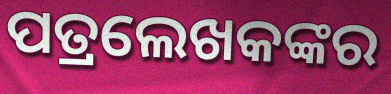
ପତ୍ରଲେଖକଙ୍କର